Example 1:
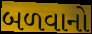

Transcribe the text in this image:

બળવાનો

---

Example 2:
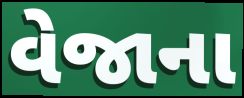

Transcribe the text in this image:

વેજાના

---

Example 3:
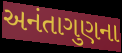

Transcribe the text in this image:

અનંતાગુણના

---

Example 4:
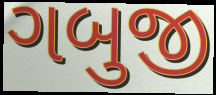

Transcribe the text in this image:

ગબુજી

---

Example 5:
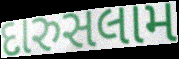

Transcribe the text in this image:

દારુસલામ